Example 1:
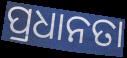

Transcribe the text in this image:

ପ୍ରଧାନତା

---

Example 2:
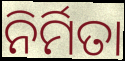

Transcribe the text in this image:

ନିର୍ମିତା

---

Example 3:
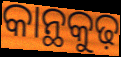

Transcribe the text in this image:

କାନ୍ଥକୁଢ଼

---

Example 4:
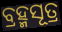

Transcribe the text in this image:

ବ୍ରହ୍ମସୂତ୍ର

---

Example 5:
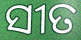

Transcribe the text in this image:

ସୀତ